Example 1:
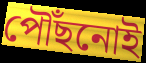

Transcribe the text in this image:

পৌঁছনোই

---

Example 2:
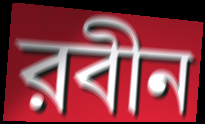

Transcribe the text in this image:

রবীন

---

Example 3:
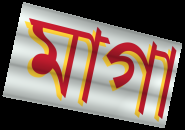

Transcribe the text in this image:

মাগা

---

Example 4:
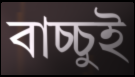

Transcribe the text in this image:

বাচ্চুই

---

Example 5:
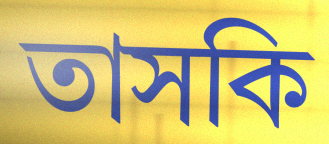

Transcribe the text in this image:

তাসকি